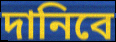
দানিবে